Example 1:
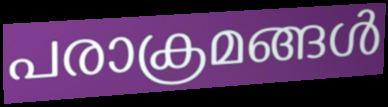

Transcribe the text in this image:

പരാക്രമങ്ങൾ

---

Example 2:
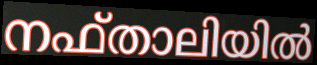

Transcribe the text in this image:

നഫ്താലിയിൽ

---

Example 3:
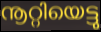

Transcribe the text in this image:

നൂറ്റിയെട്ടു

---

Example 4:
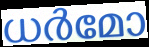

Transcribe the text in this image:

ധർമോ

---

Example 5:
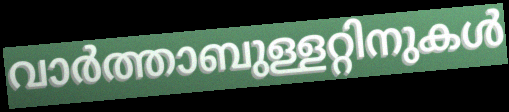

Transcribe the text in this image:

വാർത്താബുള്ളറ്റിനുകൾ